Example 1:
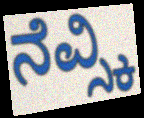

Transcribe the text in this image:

ನೆವ್ಸ್ಕಿ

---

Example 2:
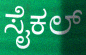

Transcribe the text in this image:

ಸೈಕಲ್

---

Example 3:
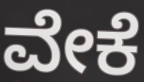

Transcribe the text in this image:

ವೇಕೆ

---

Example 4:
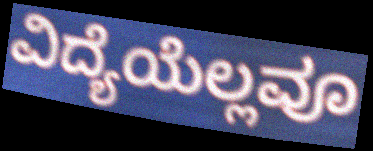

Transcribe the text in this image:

ವಿದ್ಯೆಯೆಲ್ಲವೂ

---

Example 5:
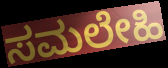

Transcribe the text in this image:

ಸಮಲೇಹಿ